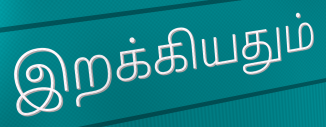
இறக்கியதும்